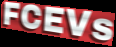
FCEVs